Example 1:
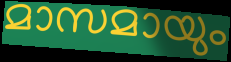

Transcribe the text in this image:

മാസമായും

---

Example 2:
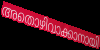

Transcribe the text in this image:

അതൊഴിവാക്കാനായി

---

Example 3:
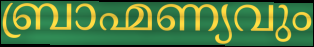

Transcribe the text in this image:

ബ്രാഹ്മണ്യവും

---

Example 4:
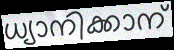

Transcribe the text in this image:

ധ്യാനിക്കാന്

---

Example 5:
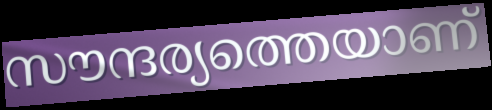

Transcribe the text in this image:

സൗന്ദര്യത്തെയാണ്